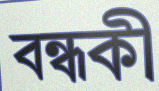
বন্ধকী